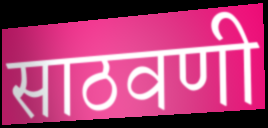
साठवणी